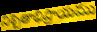
నిశ్చితాభిప్రాయము